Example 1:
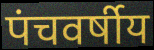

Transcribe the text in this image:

पंचवर्षीय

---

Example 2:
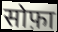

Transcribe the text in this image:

सोफ़ा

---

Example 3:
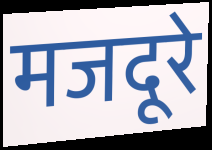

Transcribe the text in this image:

मजदूरे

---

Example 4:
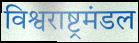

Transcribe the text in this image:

विश्वराष्ट्रमंडल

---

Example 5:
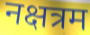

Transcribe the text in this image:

नक्षत्रम